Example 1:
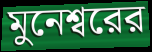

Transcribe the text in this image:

মুনেশ্বরের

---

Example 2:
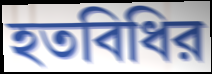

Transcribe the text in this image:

হতবিধির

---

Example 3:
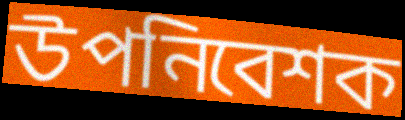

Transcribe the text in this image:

উপনিবেশক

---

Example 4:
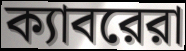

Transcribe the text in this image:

ক্যাবরেরা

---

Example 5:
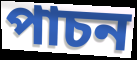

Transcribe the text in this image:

পাচন